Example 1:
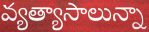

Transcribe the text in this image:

వ్యత్యాసాలున్నా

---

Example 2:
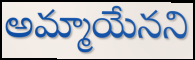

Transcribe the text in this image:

అమ్మాయేనని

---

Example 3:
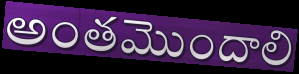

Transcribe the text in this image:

అంతమొందాలి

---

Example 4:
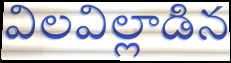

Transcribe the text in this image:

విలవిల్లాడిన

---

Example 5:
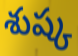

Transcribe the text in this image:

శుష్క